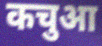
कचुआ